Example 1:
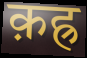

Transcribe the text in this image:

क़ह्र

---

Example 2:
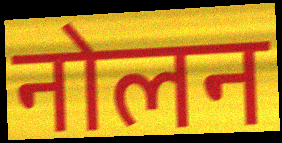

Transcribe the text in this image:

नोलन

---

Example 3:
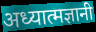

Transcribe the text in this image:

अध्यात्मज्ञानी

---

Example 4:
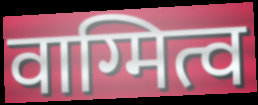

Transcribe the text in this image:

वाग्मित्व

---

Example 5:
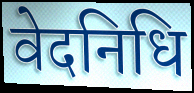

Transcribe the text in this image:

वेदनिधि